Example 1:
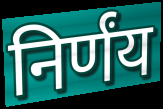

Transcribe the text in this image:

निर्णंय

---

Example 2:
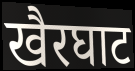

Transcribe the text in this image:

खैरघाट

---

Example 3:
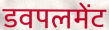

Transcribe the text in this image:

डवपलमेंट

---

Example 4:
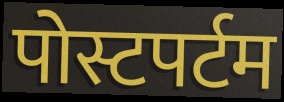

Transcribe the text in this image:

पोस्टपर्टम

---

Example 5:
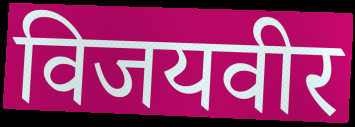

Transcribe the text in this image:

विजयवीर